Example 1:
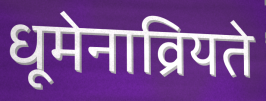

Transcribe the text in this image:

धूमेनाव्रियते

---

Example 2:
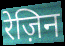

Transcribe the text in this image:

रेज़िन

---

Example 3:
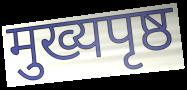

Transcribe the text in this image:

मुख्यपृष्ठ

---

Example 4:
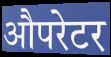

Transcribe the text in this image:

औपरेटर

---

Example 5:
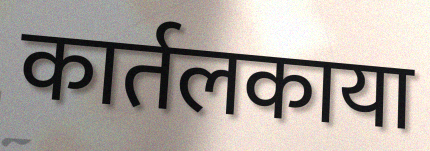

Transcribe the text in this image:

कार्तलकाया